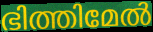
ഭിത്തിമേൽ